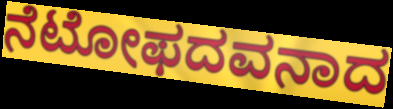
ನೆಟೋಫದವನಾದ